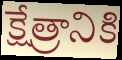
క్షేత్రానికి